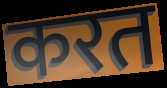
करत